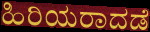
ಹಿರಿಯರಾದಡೆ